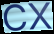
CX